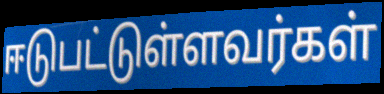
ஈடுபட்டுள்ளவர்கள்